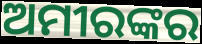
ଅମୀରଙ୍କର